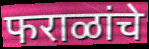
फराळांचे